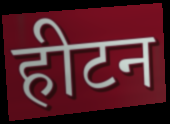
हीटन